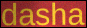
dasha